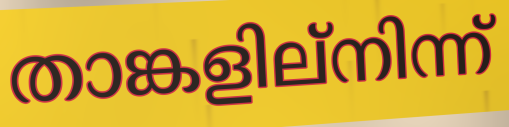
താങ്കളില്നിന്ന്